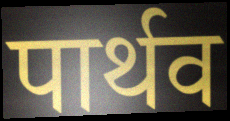
पार्थव